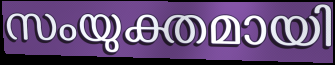
സംയുക്തമായി